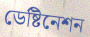
ডেষ্টিনেশন